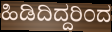
ಹಿಡಿದಿದ್ದರಿಂದ